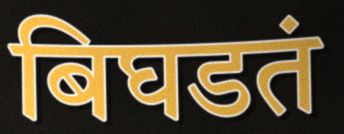
बिघडतं